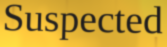
Suspected